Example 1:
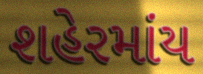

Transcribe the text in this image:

શહેરમાંય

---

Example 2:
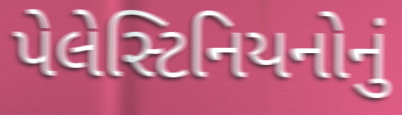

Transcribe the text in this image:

પેલેસ્ટિનિયનોનું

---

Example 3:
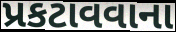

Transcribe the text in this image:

પ્રકટાવવાના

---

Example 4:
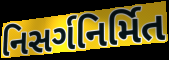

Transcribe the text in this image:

નિસર્ગનિર્મિત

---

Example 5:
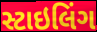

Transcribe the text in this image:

સ્ટાઇલિંગ